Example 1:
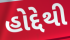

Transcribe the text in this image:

હોદ્દેથી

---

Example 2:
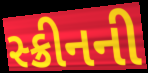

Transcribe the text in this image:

સ્ક્રીનની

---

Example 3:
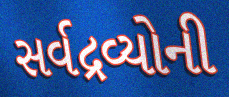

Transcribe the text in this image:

સર્વદ્રવ્યોની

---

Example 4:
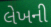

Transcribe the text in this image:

લેખની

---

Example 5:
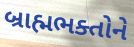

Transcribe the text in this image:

બ્રાહ્મભક્તોને